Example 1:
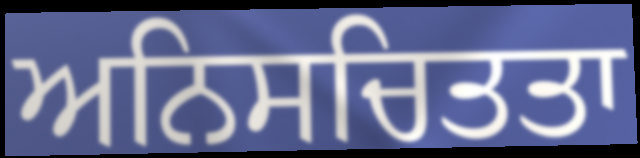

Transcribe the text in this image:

ਅਨਿਸਚਿਤਤਾ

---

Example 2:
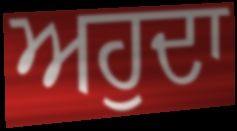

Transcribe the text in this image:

ਅਹੁਦਾ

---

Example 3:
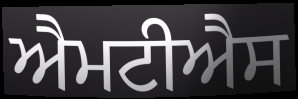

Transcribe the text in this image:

ਐਮਟੀਐਸ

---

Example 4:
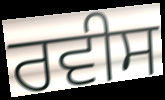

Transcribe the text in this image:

ਰਵੀਸ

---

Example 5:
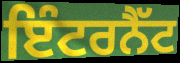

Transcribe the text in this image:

ਇੰਟਰਨੈੱਟ